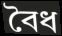
বৈধ